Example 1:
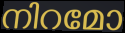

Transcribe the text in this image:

നിറമോ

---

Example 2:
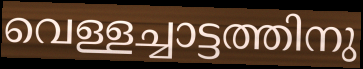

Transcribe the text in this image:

വെള്ളച്ചാട്ടത്തിനു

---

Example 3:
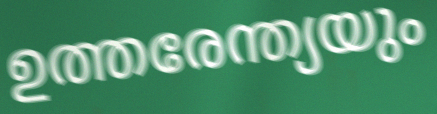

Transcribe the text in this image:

ഉത്തരേന്ത്യയും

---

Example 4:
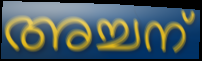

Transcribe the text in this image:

അച്ചന്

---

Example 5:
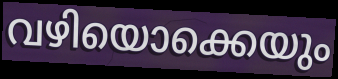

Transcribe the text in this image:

വഴിയൊക്കെയും